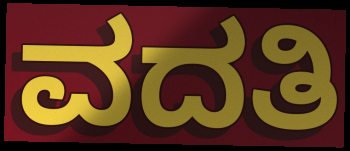
ವದತಿ